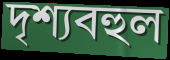
দৃশ্যবহুল